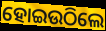
ହୋଇଉଠିଲେ